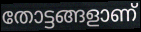
തോട്ടങ്ങളാണ്